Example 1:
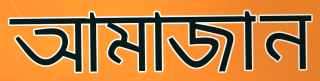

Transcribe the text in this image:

আমাজান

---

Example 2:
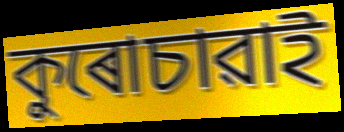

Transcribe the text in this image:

কুৰোচাৱাই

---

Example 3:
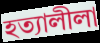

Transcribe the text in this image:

হত্যালীলা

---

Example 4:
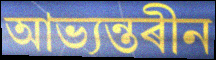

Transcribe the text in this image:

আভ্যন্তৰীন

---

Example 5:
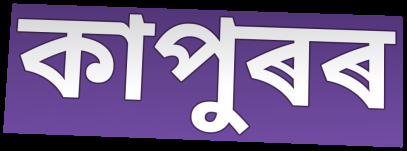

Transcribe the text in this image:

কাপুৰৰ